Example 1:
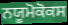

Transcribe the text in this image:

ਨਯੂਮੋਕੋਕਸ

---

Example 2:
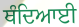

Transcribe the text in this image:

ਥੰਦਿਆਈ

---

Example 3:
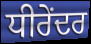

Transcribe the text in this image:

ਧੀਰੇਂਦਰ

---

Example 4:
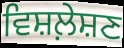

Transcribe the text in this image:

ਵਿਸ਼ਲ਼ੇਸ਼ਣ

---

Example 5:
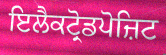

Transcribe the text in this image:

ਇਲੈਕਟ੍ਰੋਡਪੋਜ਼ਿਟ